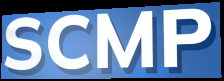
SCMP